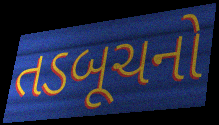
તડબૂચનો